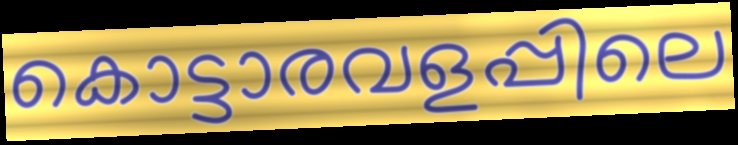
കൊട്ടാരവളപ്പിലെ